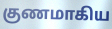
குணமாகிய